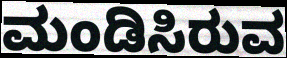
ಮಂಡಿಸಿರುವ